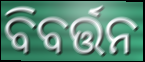
ବିବର୍ତ୍ତନ